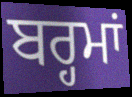
ਬਰ੍ਹਮਾਂ